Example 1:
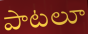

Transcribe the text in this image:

పాటలూ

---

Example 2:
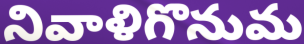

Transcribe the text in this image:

నివాళిగొనుమ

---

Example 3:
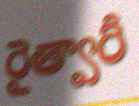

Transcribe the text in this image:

రైత్వారీ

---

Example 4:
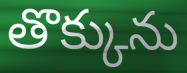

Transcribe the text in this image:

తొక్కును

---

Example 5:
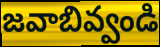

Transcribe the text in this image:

జవాబివ్వండి